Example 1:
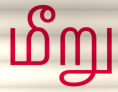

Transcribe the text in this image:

மீறு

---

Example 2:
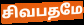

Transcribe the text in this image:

சிவபதமே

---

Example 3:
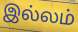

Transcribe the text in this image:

இல்லம்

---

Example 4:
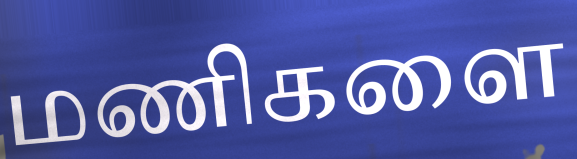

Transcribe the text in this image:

மணிகளை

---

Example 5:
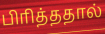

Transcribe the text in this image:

பிரித்ததால்